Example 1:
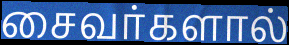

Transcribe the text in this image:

சைவர்களால்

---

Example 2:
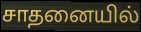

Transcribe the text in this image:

சாதனையில்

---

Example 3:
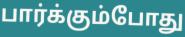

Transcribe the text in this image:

பார்க்கும்போது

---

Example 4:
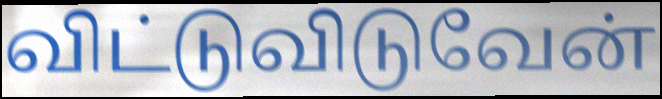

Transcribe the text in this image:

விட்டுவிடுவேன்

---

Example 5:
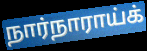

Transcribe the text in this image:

நார்நாராய்க்